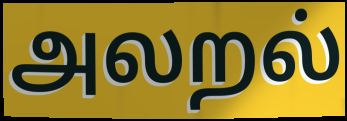
அலறல்